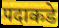
पदाकडे